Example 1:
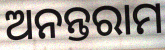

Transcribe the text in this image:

ଅନନ୍ତରାମ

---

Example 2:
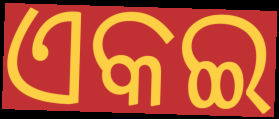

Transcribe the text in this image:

ଏକଇ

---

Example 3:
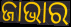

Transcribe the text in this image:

ଜାଭାର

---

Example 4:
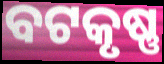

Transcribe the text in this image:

ବଟକୃଷ୍ଣ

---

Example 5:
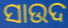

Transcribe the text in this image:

ସାଉଦ